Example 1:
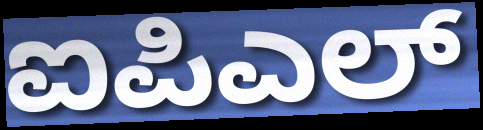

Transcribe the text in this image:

ಐಪಿಎಲ್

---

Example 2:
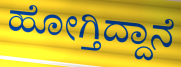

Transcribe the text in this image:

ಹೋಗ್ತಿದ್ದಾನೆ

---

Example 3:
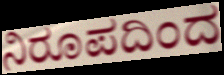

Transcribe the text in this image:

ನಿರೂಪದಿಂದ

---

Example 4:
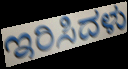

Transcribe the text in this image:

ಇರಿಸಿದಳು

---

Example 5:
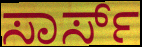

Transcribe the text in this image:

ಸಾರ್ಸ್